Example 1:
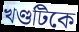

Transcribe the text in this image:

খণ্ডটিকে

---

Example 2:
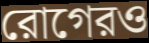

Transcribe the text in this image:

রোগেরও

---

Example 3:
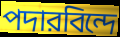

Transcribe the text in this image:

পদারবিন্দে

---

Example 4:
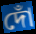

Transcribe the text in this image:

দোঁ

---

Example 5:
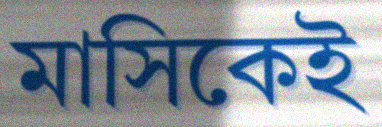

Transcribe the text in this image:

মাসিকেই